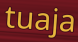
tuaja